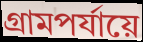
গ্রামপর্যায়ে